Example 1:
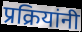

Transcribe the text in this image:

प्रक्रियांनी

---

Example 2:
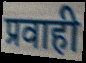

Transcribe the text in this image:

प्रवाही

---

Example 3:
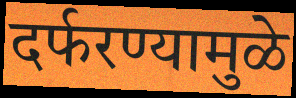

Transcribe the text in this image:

दर्फरण्यामुळे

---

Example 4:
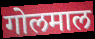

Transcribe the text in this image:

गोलमाल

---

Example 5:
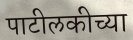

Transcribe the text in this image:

पाटीलकीच्या